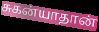
சுகன்யாதான்